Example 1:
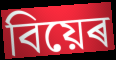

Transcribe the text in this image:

বিয়েৰ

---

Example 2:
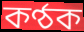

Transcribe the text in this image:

কণ্ঠক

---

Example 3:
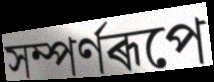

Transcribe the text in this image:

সম্পৰ্ণৰূপে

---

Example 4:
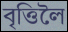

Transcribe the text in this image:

বৃত্তিলৈ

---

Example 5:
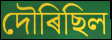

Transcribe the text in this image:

দৌৰিছিল